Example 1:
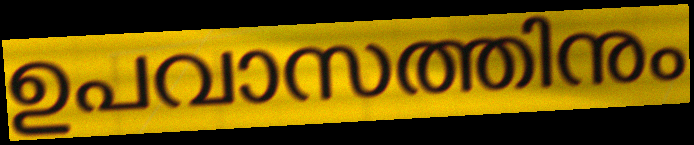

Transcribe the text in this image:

ഉപവാസത്തിനും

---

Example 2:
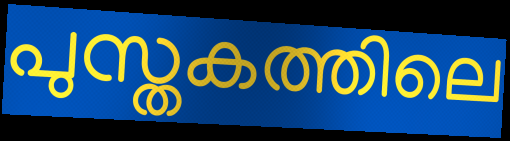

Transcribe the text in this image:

പുസ്തകത്തിലെ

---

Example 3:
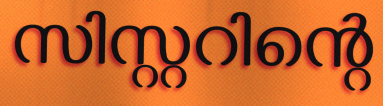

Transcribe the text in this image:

സിസ്റ്ററിന്റെ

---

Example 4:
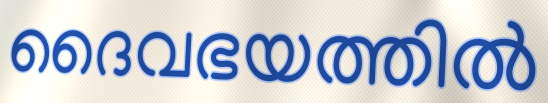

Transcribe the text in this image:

ദൈവഭയത്തിൽ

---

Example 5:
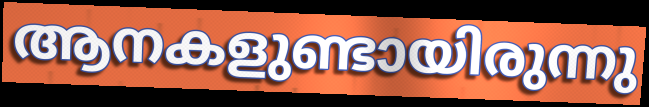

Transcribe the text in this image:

ആനകളുണ്ടായിരുന്നു